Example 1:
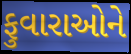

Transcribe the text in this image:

ફુવારાઓને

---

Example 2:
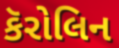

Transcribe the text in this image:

કૅરોલિન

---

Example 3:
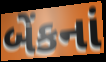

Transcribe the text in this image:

બેંકનાં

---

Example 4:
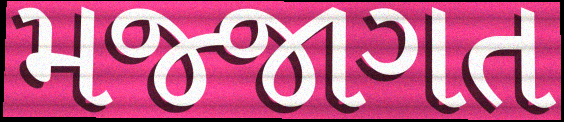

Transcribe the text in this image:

મજ્જાગત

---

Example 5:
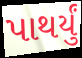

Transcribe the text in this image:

પાથર્યું